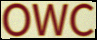
OWC